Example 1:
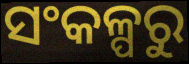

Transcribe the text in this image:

ସଂକଳ୍ପରୁ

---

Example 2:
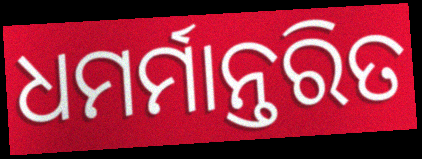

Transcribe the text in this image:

ଧମର୍ମାନ୍ତରିତ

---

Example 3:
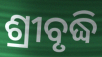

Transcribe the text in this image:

ଶ୍ରୀବୃଦ୍ଧି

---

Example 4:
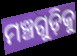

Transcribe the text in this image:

ମଞ୍ଚଗୁଡ଼ିକୁ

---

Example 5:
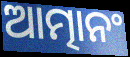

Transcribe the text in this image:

ଆତ୍ମାନଂ